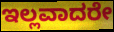
ಇಲ್ಲವಾದರೇ